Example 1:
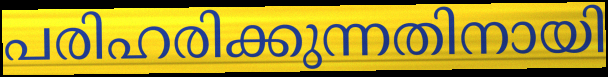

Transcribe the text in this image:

പരിഹരിക്കുന്നതിനായി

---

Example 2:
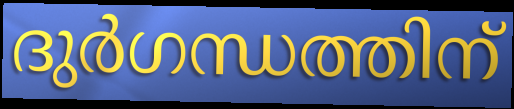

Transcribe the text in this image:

ദുർഗന്ധത്തിന്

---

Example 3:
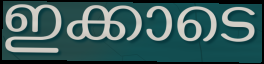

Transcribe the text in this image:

ഇക്കാടെ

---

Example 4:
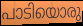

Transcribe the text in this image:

പാടിയൊരു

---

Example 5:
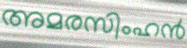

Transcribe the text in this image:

അമരസിംഹൻ